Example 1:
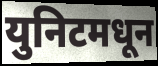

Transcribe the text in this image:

युनिटमधून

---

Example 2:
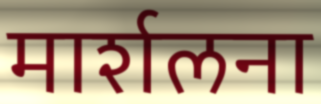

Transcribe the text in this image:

मार्शलना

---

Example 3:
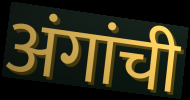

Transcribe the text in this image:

अंगांची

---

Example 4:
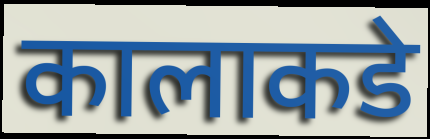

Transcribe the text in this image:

कालाकडे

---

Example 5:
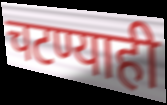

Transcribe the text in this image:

चटण्याही